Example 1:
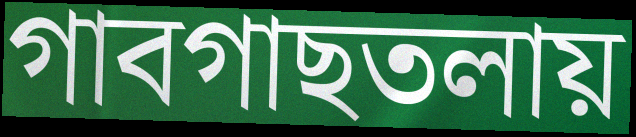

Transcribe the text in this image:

গাবগাছতলায়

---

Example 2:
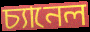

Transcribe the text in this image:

চ্যানেল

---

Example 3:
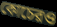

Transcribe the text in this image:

কোচেরও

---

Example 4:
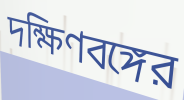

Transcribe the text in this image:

দক্ষিণবঙ্গের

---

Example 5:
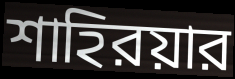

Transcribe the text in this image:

শাহিরয়ার